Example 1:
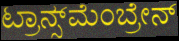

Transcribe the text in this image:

ಟ್ರಾನ್ಸ್‌ಮೆಂಬ್ರೇನ್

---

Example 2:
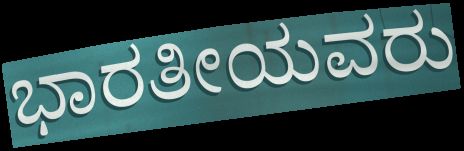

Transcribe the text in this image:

ಭಾರತೀಯವರು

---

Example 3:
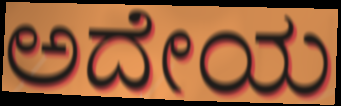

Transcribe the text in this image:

ಅದೇಯ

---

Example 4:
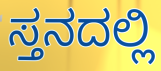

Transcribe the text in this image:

ಸ್ತನದಲ್ಲಿ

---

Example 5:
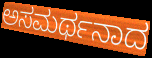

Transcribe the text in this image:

ಅಸಮರ್ಥನಾದ